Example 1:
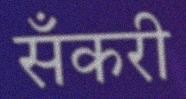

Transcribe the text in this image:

सँकरी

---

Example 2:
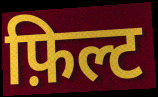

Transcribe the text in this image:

फ़िल्ट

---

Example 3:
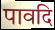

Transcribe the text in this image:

पावदि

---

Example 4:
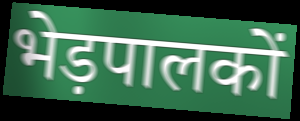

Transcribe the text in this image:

भेड़पालकों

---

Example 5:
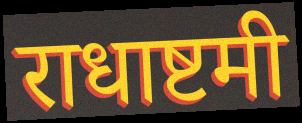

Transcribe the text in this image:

राधाष्टमी